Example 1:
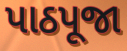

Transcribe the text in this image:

પાઠપૂજા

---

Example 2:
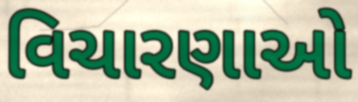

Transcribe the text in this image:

વિચારણાઓ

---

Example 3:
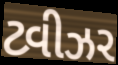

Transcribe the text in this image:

ટ્વીઝર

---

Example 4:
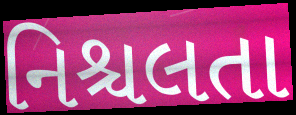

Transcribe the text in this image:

નિશ્ચલતા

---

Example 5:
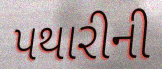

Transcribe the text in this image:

પથારીની